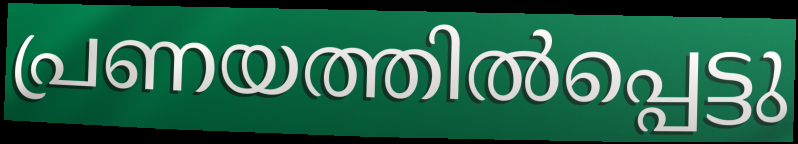
പ്രണയത്തിൽപ്പെട്ടു